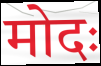
मोदः